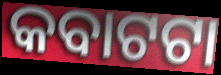
କବାଟଟା